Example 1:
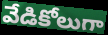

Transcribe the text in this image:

వేడికోలుగా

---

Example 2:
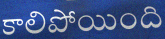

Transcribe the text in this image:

కాలిపోయింది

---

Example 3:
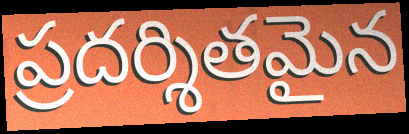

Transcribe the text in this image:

ప్రదర్శితమైన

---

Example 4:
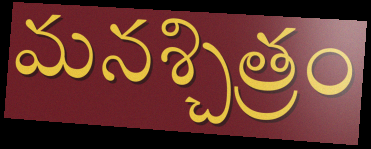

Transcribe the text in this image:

మనశ్చిత్రం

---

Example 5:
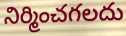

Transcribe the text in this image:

నిర్మించగలదు